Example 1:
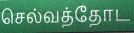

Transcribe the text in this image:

செல்வத்தோட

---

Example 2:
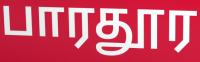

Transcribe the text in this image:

பாரதூர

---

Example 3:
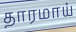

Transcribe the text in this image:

தாரமாய்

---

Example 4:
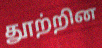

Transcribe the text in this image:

தூற்றின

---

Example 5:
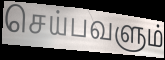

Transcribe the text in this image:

செய்பவளும்